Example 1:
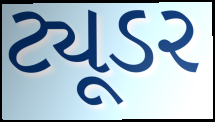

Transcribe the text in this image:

ટ્યૂડર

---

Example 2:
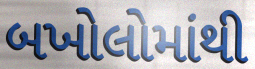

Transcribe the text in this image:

બખોલોમાંથી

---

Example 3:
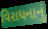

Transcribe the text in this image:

વિરાધનાનું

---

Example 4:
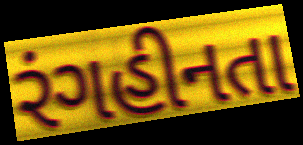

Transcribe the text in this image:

રંગહીનતા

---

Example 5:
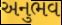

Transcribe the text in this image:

અનુભવ